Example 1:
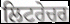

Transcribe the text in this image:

ਲਿਟਰੇਚਰ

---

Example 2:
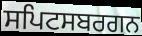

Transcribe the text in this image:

ਸਪਿਟਸਬਰਗਨ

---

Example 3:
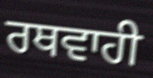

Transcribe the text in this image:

ਰਥਵਾਹੀ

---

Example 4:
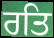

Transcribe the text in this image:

ਰਤਿ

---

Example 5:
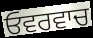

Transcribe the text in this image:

ਓਵਰਵਾਚ